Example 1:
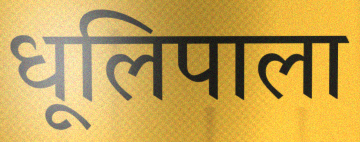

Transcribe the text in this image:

धूलिपाला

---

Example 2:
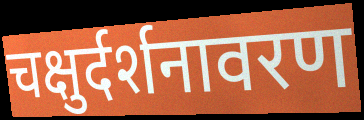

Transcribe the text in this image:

चक्षुर्दर्शनावरण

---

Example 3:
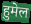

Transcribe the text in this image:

हुमेल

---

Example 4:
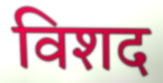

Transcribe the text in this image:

विशद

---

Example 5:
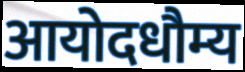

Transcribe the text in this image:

आयोदधौम्य